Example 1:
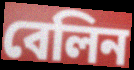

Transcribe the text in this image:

বেলিন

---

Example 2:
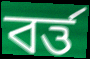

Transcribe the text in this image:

বর্ত্ত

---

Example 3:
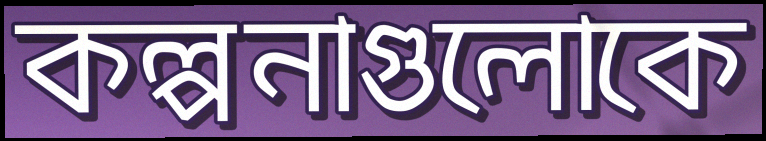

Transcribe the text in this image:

কল্পনাগুলোকে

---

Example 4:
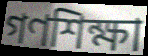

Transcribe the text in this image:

গণশিক্ষা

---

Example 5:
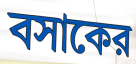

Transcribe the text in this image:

বসাকের